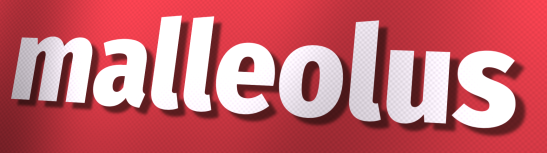
malleolus